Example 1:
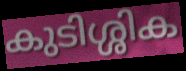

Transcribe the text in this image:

കുടിശ്ശിക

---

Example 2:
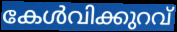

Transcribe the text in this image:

കേൾവിക്കുറവ്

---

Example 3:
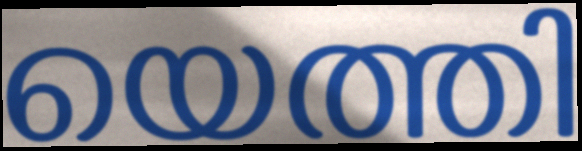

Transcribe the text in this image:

യെത്തി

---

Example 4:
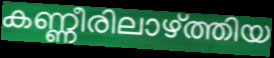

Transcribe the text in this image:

കണ്ണീരിലാഴ്ത്തിയ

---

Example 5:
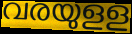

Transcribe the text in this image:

വരയുളള